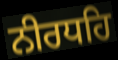
ਨੀਰਧਹਿ